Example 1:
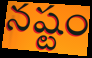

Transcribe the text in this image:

నష్టం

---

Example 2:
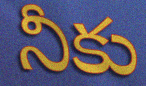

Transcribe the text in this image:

నీకు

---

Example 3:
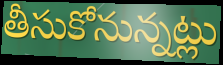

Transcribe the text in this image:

తీసుకోనున్నట్లు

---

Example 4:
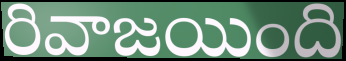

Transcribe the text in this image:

రివాజయింది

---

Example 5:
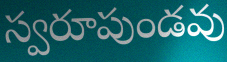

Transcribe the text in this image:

స్వరూపుండవు